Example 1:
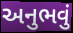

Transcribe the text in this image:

અનુભવું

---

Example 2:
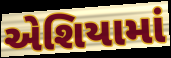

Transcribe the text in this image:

એશિયામાં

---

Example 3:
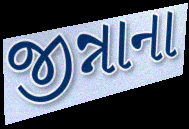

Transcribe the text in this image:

જીન્નાના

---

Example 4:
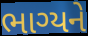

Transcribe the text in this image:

ભાગ્યને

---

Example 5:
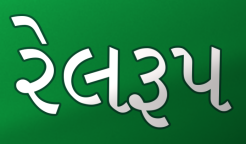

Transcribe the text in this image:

રેલરૂપ